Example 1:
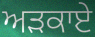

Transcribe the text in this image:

ਅੜਕਾਏ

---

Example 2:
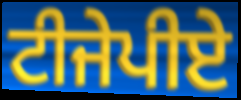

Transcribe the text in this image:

ਟੀਜੇਪੀਏ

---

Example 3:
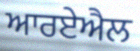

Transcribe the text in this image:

ਆਰਏਐਲ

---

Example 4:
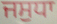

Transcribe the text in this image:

ਜਸੁਧਾ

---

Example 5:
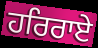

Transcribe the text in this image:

ਹਰਿਰਾਏ